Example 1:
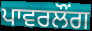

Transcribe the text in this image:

ਪਾਵਰਲੌਂਗ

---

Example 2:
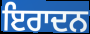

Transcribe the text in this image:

ਇਰਾਦਨ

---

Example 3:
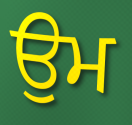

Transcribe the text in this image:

ਉਮ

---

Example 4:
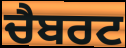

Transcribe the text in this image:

ਚੈਬਰਟ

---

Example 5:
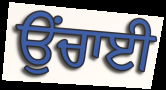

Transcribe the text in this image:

ਉਂਚਾਈ